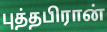
புத்தபிரான்